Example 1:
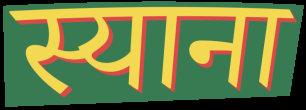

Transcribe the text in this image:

स्याना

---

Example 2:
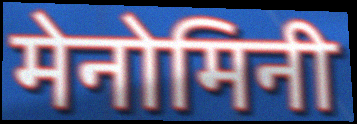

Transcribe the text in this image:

मेनोमिनी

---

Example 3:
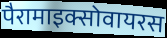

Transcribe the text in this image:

पैरामाइक्सोवायरस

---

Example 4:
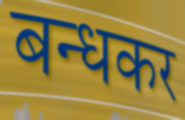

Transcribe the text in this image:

बन्धकर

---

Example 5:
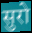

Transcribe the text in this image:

सुरो